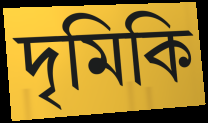
দৃমিকি